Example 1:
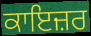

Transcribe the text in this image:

ਕਾਇਜ਼ਰ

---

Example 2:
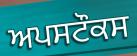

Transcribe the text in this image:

ਅਪਸਟੌਕਸ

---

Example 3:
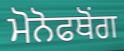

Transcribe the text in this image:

ਮੋਨੋਫਥੋਂਗ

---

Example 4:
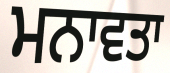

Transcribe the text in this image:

ਮਨਾਵਤਾ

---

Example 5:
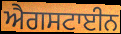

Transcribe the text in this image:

ਐਗਸਟਾਈਨ